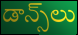
డాన్స్‌లు